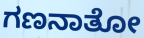
ಗಣನಾತೋ